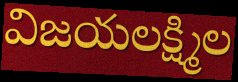
విజయలక్ష్మిల